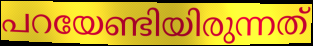
പറയേണ്ടിയിരുന്നത്